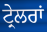
ਟ੍ਰੇਲਰਾਂ